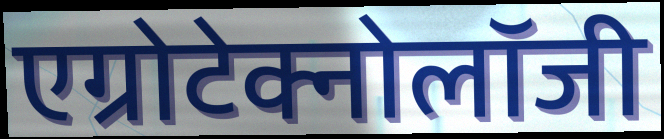
एग्रोटेक्नोलॉजी